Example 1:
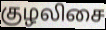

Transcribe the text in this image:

குழலிசை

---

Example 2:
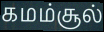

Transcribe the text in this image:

கமம்சூல்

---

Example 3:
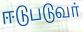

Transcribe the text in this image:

ஈடுபடுவர்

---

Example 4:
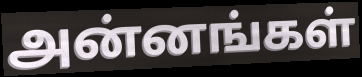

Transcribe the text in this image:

அன்னங்கள்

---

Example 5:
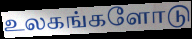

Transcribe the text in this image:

உலகங்களோடு